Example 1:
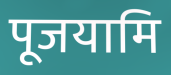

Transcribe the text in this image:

पूजयामि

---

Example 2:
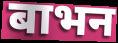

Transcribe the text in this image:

बाभन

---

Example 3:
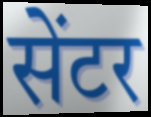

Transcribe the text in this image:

सेंटर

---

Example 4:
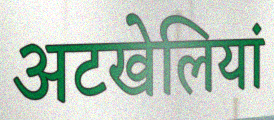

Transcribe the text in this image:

अटखेलियां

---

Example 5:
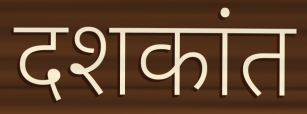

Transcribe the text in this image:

दशकांत